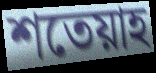
শতেয়াহ